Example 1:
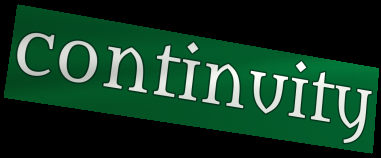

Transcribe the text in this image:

continuity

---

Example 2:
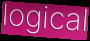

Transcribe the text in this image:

logical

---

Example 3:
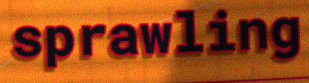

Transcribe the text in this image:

sprawling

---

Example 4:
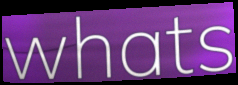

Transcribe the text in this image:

whats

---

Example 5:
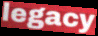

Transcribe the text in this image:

legacy